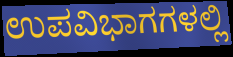
ಉಪವಿಭಾಗಗಳಲ್ಲಿ